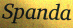
Spanda